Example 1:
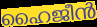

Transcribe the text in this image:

ഹൈജീൻ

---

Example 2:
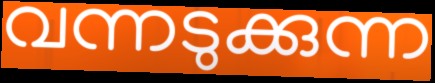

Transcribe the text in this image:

വന്നടുക്കുന്ന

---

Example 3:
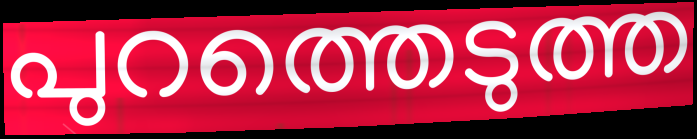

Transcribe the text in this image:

പുറത്തെടുത്ത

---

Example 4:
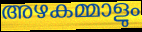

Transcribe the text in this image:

അഴകമ്മാളും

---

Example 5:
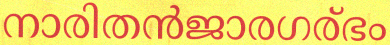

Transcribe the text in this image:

നാരിതൻജാരഗര്ഭം